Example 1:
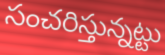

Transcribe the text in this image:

సంచరిస్తున్నట్టు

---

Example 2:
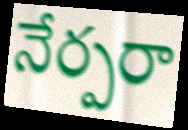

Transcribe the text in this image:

నేర్పరా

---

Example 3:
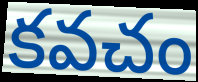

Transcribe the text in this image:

కవచం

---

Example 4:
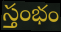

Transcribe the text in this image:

స్తంభం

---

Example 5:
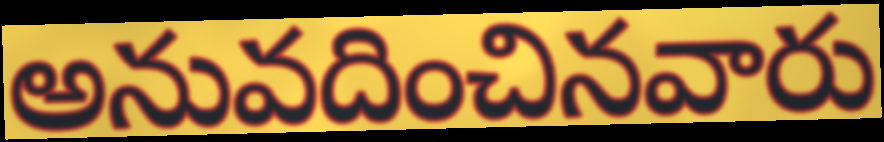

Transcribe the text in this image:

అనువదించినవారు